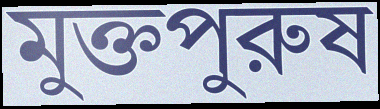
মুক্তপুরুষ